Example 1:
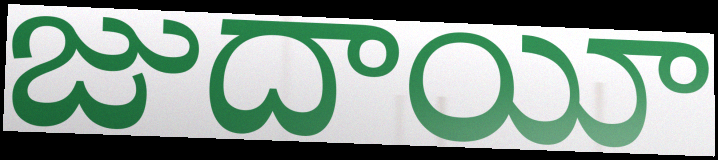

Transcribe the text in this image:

జుదాయీ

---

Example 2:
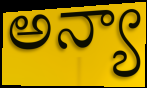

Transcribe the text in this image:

అన్యా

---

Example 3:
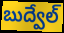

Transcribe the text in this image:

బుద్వేల్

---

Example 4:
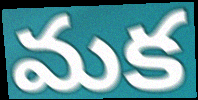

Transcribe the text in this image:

మక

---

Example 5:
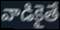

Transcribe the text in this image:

వాడికైతే